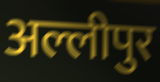
अल्लीपुर